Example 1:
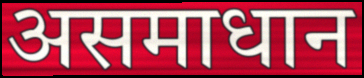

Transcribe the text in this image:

असमाधान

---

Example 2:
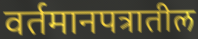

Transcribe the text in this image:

वर्तमानपत्रातील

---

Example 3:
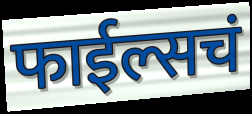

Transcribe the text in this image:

फाईल्सचं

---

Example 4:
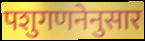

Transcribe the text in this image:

पशुगणनेनुसार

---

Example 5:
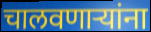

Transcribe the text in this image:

चालवणार्‍यांना